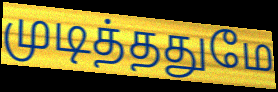
முடித்ததுமே